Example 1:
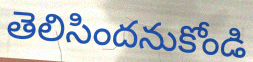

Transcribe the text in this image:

తెలిసిందనుకోండి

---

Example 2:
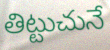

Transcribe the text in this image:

తిట్టుచునే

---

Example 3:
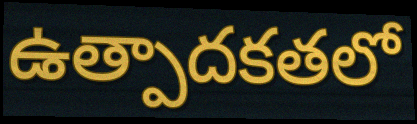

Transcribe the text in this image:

ఉత్పాదకతలో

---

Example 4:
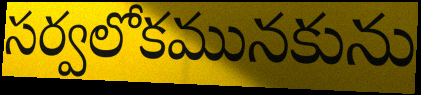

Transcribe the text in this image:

సర్వలోకమునకును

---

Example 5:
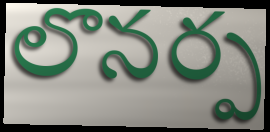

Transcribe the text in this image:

లొనర్ప